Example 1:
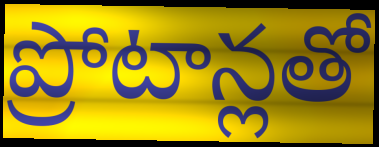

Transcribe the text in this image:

ప్రోటాన్లతో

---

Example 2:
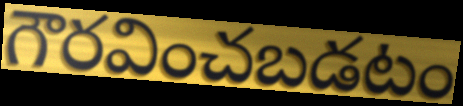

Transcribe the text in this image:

గౌరవించబడటం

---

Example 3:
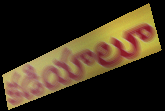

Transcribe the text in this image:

కడియాలూ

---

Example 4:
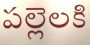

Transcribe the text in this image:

పల్లెలకి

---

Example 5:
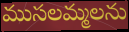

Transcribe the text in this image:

ముసలమ్మలను